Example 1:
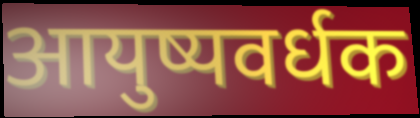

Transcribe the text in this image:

आयुष्यवर्धक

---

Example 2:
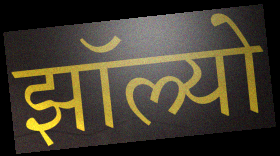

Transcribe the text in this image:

झॉल्यो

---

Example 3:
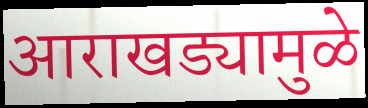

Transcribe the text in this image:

आराखड्यामुळे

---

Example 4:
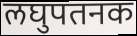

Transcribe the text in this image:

लघुपतनक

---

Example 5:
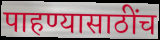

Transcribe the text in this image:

पाहण्यासाठींच